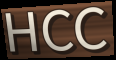
HCC